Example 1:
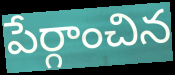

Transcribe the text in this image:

పేర్గాంచిన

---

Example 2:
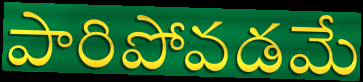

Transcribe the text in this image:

పారిపోవడమే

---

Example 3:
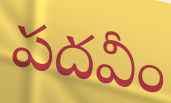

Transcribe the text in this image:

పదవీం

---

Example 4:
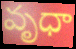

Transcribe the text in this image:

వృధా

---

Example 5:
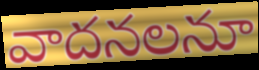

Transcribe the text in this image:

వాదనలనూ